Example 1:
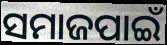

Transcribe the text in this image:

ସମାଜପାଇଁ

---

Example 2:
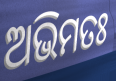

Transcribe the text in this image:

ଅଭିମତଃ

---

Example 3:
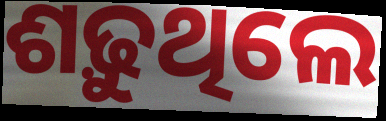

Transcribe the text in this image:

ଶଢ଼ୁଥିଲେ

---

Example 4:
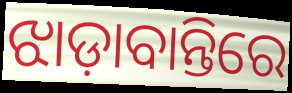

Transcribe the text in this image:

ଝାଡ଼ାବାନ୍ତିରେ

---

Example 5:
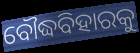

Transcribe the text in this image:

ବୌଦ୍ଧବିହାରକୁ